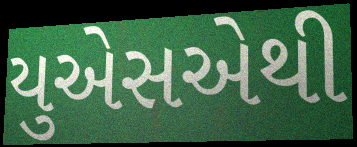
યુએસએથી